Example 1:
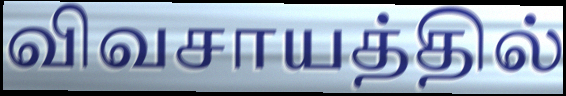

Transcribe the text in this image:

விவசாயத்தில்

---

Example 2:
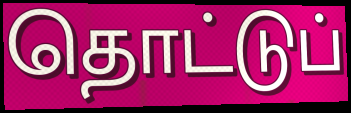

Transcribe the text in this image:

தொட்டுப்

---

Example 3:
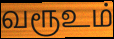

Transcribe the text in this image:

வரூஉம்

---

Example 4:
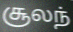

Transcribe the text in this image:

சூலந்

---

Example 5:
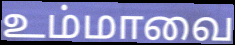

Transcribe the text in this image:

உம்மாவை